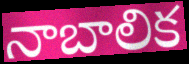
నాబాలిక